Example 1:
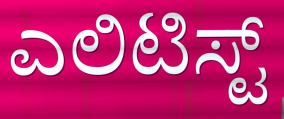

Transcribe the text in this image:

ಎಲಿಟಿಸ್ಟ್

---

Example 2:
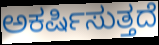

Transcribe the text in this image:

ಅಕರ್ಷಿಸುತ್ತದೆ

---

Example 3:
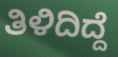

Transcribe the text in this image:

ತಿಳಿದಿದ್ದೆ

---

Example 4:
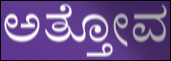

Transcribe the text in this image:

ಅತ್ತೋವ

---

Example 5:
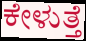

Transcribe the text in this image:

ಕೇಳುತ್ತೆ